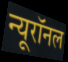
न्यूरॉनल